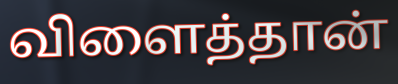
விளைத்தான்